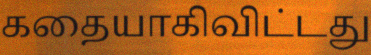
கதையாகிவிட்டது